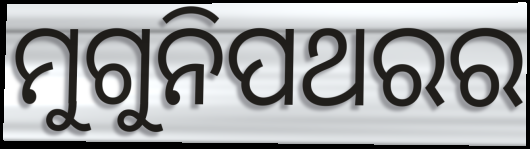
ମୁଗୁନିପଥରର